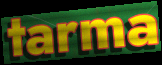
tarma